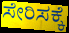
ಸೇರಿಸಕ್ಕೆ